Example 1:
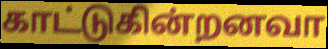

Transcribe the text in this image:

காட்டுகின்றனவா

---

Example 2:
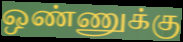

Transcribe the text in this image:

ஒண்ணுக்கு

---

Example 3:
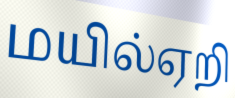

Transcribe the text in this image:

மயில்ஏறி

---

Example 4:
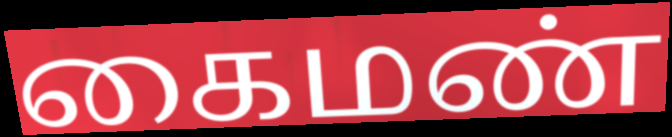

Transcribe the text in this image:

கைமண்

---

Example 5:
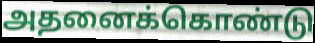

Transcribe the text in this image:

அதனைக்கொண்டு